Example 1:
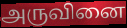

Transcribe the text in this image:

அருவினை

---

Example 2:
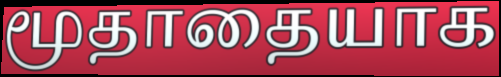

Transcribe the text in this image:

மூதாதையாக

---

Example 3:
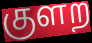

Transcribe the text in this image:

குளற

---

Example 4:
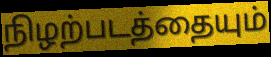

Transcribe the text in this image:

நிழற்படத்தையும்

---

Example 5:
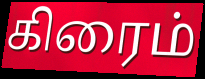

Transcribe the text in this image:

கிரைம்